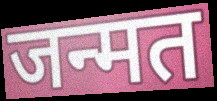
जन्मत